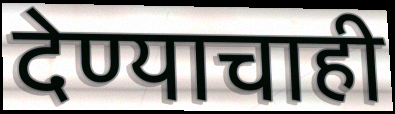
देण्याचाही